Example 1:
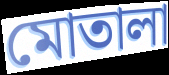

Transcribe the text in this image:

মোতালা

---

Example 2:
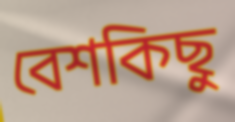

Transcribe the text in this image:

বেশকিছু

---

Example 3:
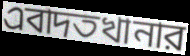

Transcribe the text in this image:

এবাদতখানার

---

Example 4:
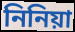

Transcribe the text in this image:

নিনিয়া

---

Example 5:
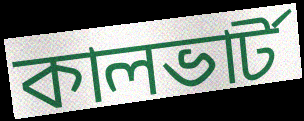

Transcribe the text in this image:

কালভার্ট